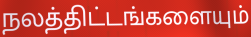
நலத்திட்டங்களையும்